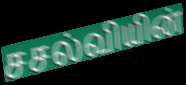
சசல்வியின்